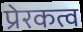
प्रेरकत्व